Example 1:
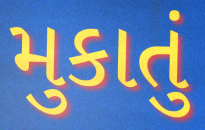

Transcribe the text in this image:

મુકાતું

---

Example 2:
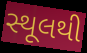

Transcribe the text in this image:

સ્થૂલથી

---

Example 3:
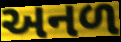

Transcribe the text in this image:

અનળ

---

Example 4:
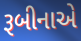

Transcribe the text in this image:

રૂબીનાએ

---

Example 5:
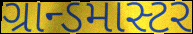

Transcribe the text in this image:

ગ્રાન્ડમાસ્ટર